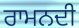
ਰਾਮਨਦੀ